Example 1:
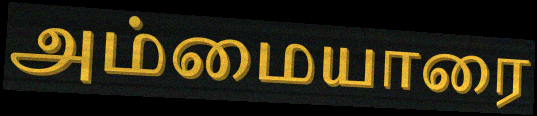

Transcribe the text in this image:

அம்மையாரை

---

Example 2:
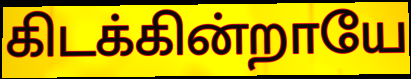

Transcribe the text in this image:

கிடக்கின்றாயே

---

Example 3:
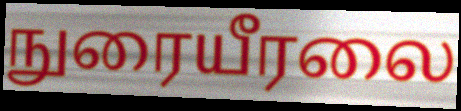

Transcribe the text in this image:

நுரையீரலை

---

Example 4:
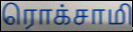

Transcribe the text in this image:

ரொக்சாமி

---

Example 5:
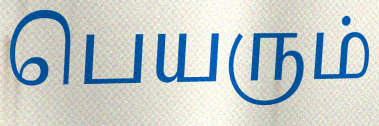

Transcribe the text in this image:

பெயரும்